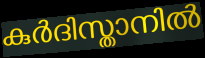
കുർദിസ്താനിൽ